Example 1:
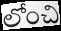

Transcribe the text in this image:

లోంచి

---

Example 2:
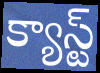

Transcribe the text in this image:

క్యాస్ట్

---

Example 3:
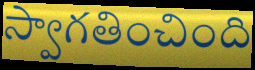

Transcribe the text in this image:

స్వాగతించింది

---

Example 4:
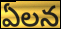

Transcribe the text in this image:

ఏలన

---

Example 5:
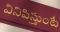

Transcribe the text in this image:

వినిపిస్తుంటే